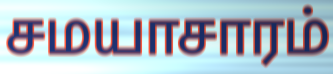
சமயாசாரம்